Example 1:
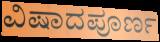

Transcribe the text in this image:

ವಿಷಾದಪೂರ್ಣ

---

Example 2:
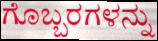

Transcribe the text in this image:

ಗೊಬ್ಬರಗಳನ್ನು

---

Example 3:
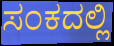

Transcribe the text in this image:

ಸಂಕದಲ್ಲಿ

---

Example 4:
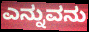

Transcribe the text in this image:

ಎನ್ನುವನು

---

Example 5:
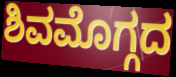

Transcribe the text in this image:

ಶಿವಮೊಗ್ಗದ